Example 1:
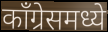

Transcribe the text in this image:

काँग्रेसमध्ये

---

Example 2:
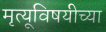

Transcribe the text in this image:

मृत्यूविषयीच्या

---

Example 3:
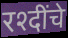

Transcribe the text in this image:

रश्दींचे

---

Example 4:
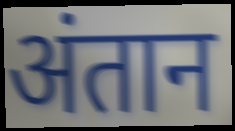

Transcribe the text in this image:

अंतान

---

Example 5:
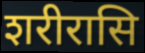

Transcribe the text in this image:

शरीरासि